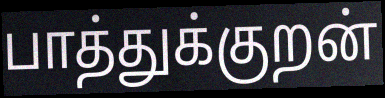
பாத்துக்குறன்